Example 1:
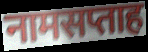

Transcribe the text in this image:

नामसप्ताह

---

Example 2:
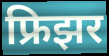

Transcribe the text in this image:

फ्रिझर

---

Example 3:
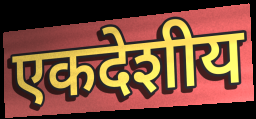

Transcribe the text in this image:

एकदेशीय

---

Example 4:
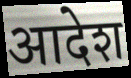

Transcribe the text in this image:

आदेश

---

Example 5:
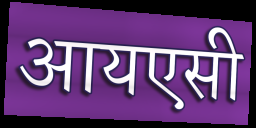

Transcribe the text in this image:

आयएसी